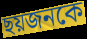
ছয়জনকে